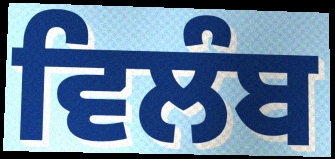
ਵਿਲੰਬ